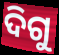
ଦିଗୁ